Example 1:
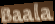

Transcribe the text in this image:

Baala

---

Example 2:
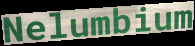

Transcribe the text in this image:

Nelumbium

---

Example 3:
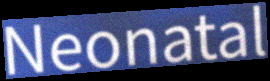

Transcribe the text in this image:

Neonatal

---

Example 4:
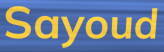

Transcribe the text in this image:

Sayoud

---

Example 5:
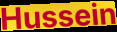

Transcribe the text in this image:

Hussein